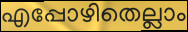
എപ്പോഴിതെല്ലാം